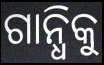
ଗାନ୍ଧିକୁ